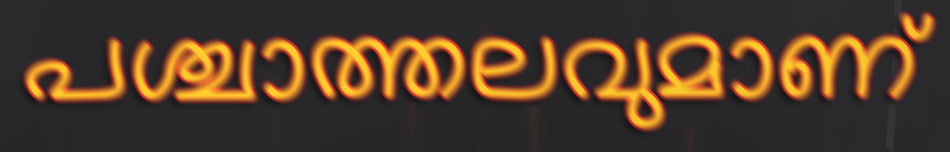
പശ്ചാത്തലവുമാണ്